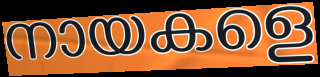
നായകളെ